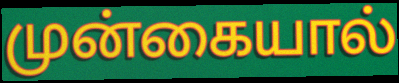
முன்கையால்